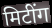
मिटींग